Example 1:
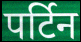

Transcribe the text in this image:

पर्टिन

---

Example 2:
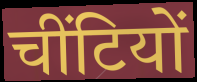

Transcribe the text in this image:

चींटियों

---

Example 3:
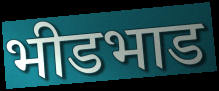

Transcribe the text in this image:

भीडभाड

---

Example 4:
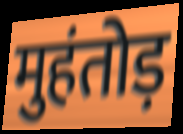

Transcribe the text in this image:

मुहंतोड़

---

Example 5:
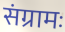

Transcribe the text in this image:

संग्रामः